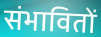
संभावितों